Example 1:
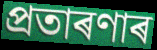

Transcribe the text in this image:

প্ৰতাৰণাৰ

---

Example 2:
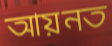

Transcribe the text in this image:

আয়নত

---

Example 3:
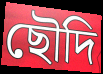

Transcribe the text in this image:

ছৌদি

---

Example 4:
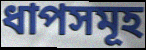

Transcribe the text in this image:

ধাপসমূহ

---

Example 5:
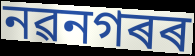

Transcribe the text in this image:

নৱনগৰৰ